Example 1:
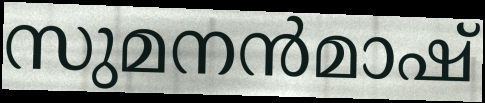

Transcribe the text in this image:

സുമനൻമാഷ്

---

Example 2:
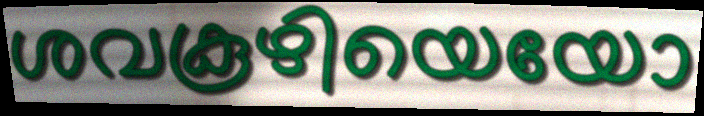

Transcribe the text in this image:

ശവകൂഴിയെയോ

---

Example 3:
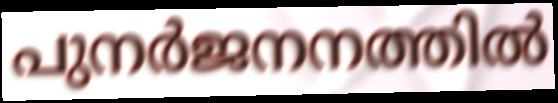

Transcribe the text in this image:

പുനർജനനത്തിൽ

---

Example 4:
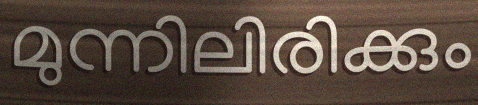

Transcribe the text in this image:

മുന്നിലിരിക്കും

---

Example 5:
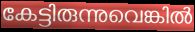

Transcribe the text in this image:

കേട്ടിരുന്നുവെങ്കിൽ